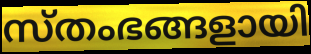
സ്തംഭങ്ങളായി